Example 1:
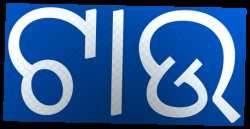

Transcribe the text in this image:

ଟାଉ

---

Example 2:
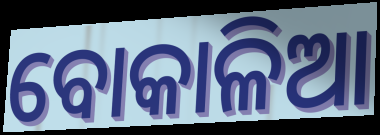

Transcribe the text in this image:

ବୋକାଳିଆ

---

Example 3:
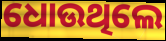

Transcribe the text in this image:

ଧୋଉଥିଲେ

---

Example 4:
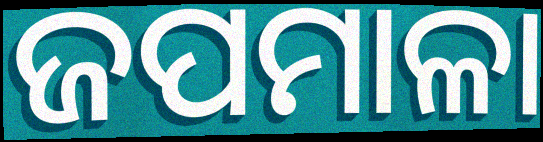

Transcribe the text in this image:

ଜପମାଳା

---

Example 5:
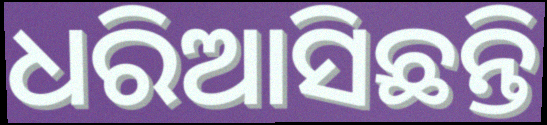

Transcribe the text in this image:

ଧରିଆସିଛନ୍ତି